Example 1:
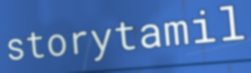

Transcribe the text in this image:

storytamil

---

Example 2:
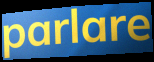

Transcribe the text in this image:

parlare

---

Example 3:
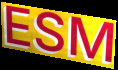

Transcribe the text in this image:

ESM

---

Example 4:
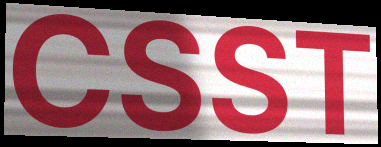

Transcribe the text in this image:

CSST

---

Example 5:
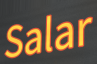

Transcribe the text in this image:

Salar